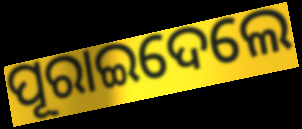
ପୂରାଇଦେଲେ